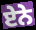
ਏੇਨੇ